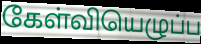
கேள்வியெழுப்ப